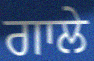
ਗਾਲੇ